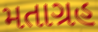
મતાગ્રહ